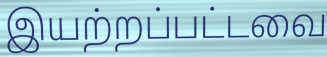
இயற்றப்பட்டவை